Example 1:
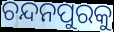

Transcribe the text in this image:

ଚନ୍ଦନପୁରକୁ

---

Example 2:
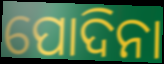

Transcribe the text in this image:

ପୋଦିନା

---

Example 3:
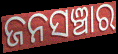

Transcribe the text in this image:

ଜନସଞ୍ଚାର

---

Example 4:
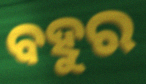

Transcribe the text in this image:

ବହୁର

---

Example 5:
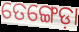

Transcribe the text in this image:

ତେଙ୍ଗେଡ଼ା